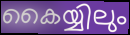
കൈയ്യിലും